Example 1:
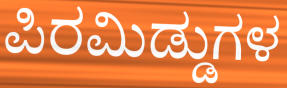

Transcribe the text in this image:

ಪಿರಮಿಡ್ಡುಗಳ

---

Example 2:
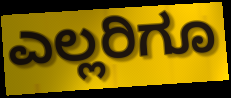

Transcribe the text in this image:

ಎಲ್ಲರಿಗೂ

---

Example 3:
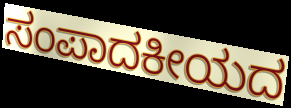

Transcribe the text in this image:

ಸಂಪಾದಕೀಯದ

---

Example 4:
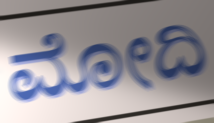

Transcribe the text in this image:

ಮೋದಿ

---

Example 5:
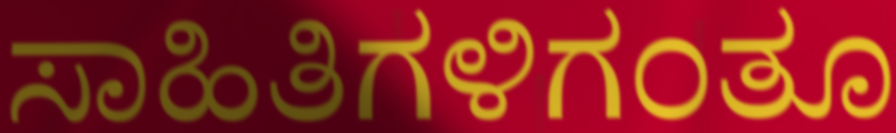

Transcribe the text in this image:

ಸಾಹಿತಿಗಳಿಗಂತೂ